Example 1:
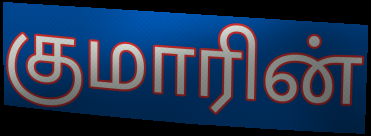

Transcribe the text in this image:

குமாரின்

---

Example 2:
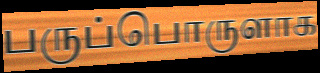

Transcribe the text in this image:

பருப்பொருளாக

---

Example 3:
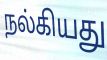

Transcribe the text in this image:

நல்கியது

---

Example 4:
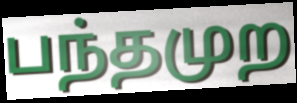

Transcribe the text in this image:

பந்தமுற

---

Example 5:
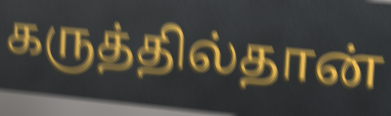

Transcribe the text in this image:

கருத்தில்தான்